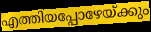
എത്തിയപ്പോഴേയ്ക്കും